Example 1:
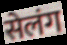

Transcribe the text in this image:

सेलंग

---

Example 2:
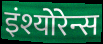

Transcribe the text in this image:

इंश्योरेन्स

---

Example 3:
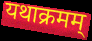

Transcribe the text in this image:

यथाक्रमम्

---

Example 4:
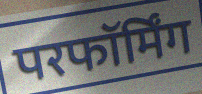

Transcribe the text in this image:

परफॉर्मिंग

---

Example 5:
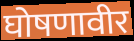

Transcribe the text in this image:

घोषणावीर